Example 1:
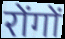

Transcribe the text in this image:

रोंगों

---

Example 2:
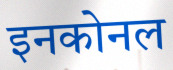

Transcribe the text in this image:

इनकोनल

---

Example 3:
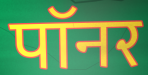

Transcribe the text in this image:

पॉनर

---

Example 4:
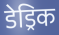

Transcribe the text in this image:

डेड्रिक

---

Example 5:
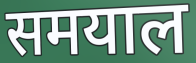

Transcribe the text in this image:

समयाल